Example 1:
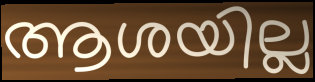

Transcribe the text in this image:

ആശയില്ല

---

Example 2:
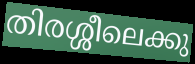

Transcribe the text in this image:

തിരശ്ശീലെക്കു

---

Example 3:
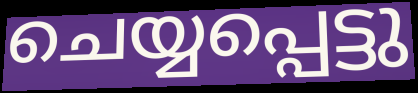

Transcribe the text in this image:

ചെയ്യപ്പെട്ടു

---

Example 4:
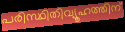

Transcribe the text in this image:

പരിസ്ഥിതിവ്യൂഹത്തിന്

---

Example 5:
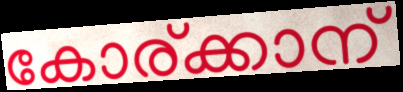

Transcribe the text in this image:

കോര്ക്കാന്